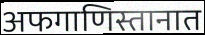
अफगाणिस्तानात